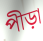
পীড়া